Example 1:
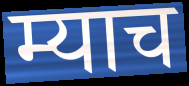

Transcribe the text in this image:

म्याच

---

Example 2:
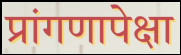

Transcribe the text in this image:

प्रांगणापेक्षा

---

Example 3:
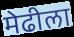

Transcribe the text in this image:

मेढीला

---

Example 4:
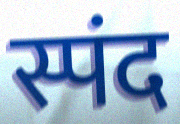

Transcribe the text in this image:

स्पंद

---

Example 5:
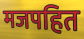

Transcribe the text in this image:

मजपहित